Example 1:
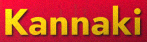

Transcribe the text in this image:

Kannaki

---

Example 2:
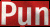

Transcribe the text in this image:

Pun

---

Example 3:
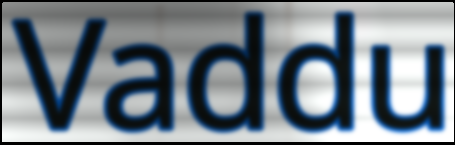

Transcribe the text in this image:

Vaddu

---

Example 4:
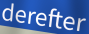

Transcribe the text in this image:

derefter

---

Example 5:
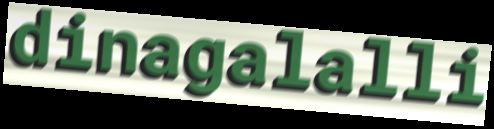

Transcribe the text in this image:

dinagalalli